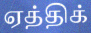
ஏத்திக்